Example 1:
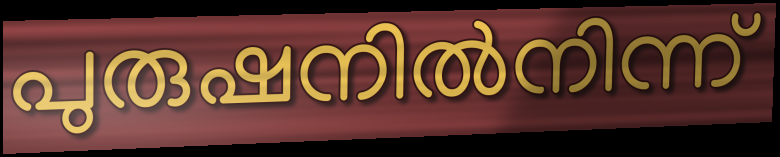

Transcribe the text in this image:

പുരുഷനിൽനിന്ന്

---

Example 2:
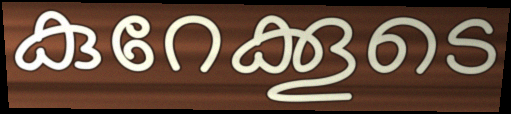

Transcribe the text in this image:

കുറേക്കൂടെ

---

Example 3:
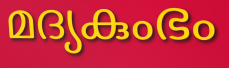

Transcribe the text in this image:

മദ്യകുംഭം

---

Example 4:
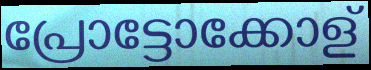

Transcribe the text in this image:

പ്രോട്ടോക്കോള്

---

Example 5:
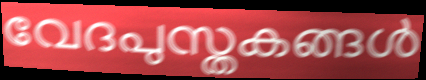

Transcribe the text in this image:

വേദപുസ്തകങ്ങൾ